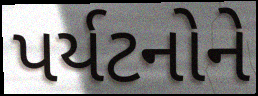
પર્યટનોને